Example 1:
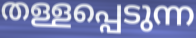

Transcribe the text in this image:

തള്ളപ്പെടുന്ന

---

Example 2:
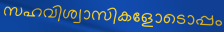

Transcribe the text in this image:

സഹവിശ്വാസികളോടൊപ്പം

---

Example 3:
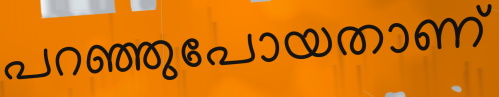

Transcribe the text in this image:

പറഞ്ഞുപോയതാണ്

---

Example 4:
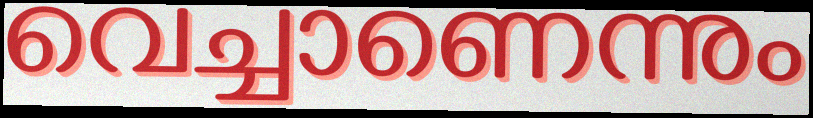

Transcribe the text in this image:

വെച്ചാണെന്നും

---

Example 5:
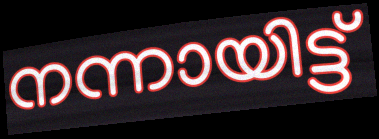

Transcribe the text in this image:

നന്നായിട്ട്